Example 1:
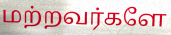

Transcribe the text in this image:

மற்றவர்களே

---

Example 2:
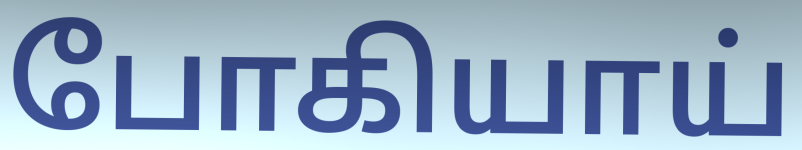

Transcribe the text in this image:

போகியாய்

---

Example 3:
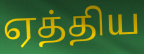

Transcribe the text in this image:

ஏத்திய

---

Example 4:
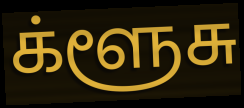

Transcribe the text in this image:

க்ளூசு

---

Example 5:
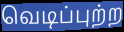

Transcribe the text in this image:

வெடிப்புற்ற